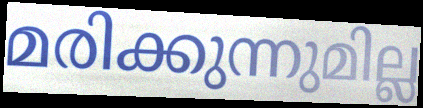
മരിക്കുന്നുമില്ല